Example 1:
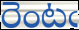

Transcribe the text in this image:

రెంటఁ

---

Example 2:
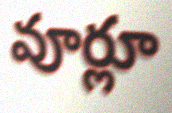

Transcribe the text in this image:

వూర్లూ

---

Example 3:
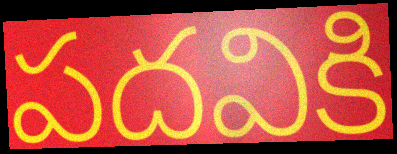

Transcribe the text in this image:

పదవికి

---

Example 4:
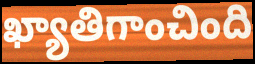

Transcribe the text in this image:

ఖ్యాతిగాంచింది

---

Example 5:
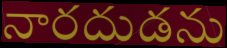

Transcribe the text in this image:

నారదుడను